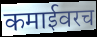
कमाईवरच